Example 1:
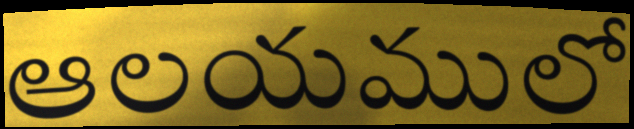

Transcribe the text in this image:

ఆలయములో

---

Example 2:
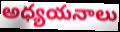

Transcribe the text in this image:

అధ్యయనాలు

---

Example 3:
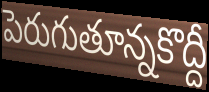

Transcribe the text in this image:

పెరుగుతూన్నకొద్దీ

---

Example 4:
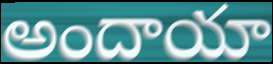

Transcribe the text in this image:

అందాయా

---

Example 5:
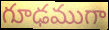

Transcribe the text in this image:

గూఢముగా